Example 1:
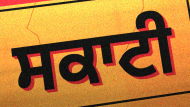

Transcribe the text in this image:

ਸਕਾਟੀ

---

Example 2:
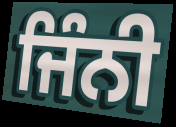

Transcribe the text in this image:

ਜਿੰਨੀ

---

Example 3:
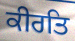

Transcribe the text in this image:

ਕੀਰਤਿ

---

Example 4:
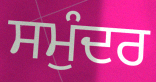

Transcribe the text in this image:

ਸਮੁੰਦਰ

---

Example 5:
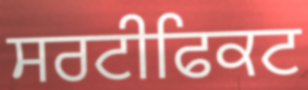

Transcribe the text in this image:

ਸਰਟੀਫਿਕਟ